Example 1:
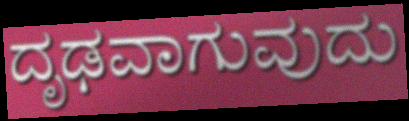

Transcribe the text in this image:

ದೃಢವಾಗುವುದು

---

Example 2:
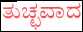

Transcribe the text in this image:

ತುಚ್ಛವಾದ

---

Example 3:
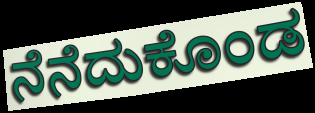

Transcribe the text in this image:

ನೆನೆದುಕೊಂಡ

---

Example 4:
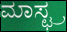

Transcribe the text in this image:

ಮಾಸ್ಟ್ರ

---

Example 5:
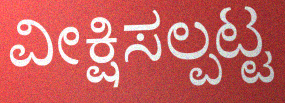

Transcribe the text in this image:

ವೀಕ್ಷಿಸಲ್ಪಟ್ಟ